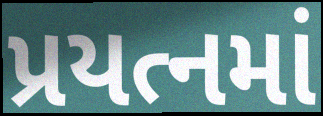
પ્રયત્નમાં